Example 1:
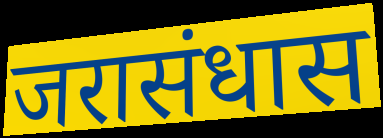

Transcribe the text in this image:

जरासंधास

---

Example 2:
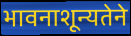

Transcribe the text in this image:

भावनाशून्यतेने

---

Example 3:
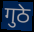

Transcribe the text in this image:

गुठे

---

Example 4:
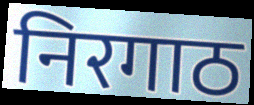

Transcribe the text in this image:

निरगाठ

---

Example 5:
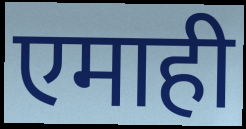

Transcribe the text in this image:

एमाही